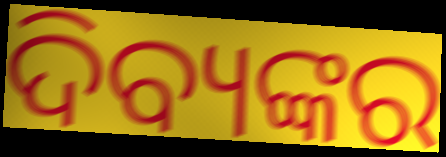
ଦିବ୍ୟଙ୍କର